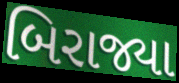
બિરાજ્યા